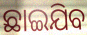
ଛାଇଯିବ